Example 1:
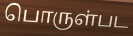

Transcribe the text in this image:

பொருள்பட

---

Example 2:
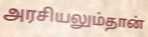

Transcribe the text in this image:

அரசியலும்தான்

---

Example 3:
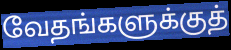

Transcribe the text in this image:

வேதங்களுக்குத்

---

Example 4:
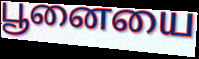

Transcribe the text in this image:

பூனையை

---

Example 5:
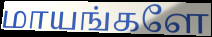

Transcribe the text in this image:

மாயங்களே